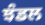
ਝੰਡਲ